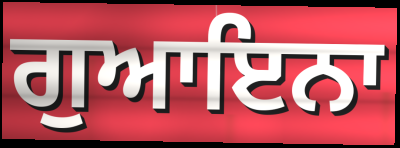
ਗੁਆਇਨਾ